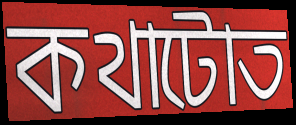
কথাটোত